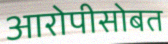
आरोपीसोबत